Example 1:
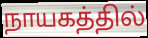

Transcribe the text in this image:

நாயகத்தில்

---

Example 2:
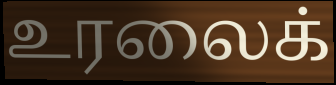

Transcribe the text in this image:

உரலைக்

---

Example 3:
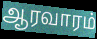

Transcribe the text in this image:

ஆரவாரம்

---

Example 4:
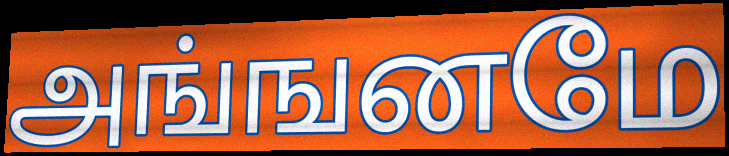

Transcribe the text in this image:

அங்ஙனமே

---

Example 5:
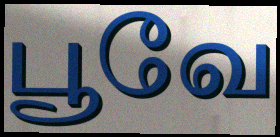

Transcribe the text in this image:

பூவே